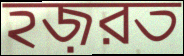
হজ়রত